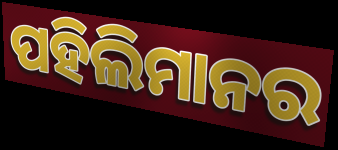
ପହିଲିମାନର